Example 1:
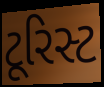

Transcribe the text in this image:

ટૂરિસ્ટ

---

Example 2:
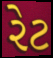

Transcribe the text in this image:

રેટ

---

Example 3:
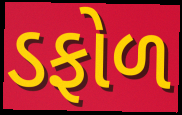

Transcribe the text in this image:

ડફોળ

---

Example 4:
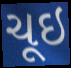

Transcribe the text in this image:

ચૂઇ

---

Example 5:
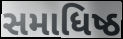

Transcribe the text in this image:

સમાધિષ્ઠ